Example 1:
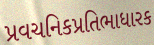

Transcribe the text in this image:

પ્રવચનિકપ્રતિભાધારક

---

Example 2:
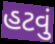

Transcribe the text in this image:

હટવું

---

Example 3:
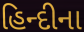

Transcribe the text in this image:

હિન્દીના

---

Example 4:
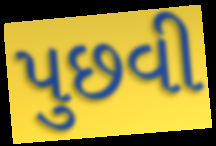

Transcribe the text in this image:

પુછવી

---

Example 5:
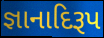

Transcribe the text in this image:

જ્ઞાનાદિરૂપ